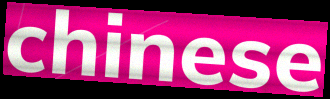
chinese